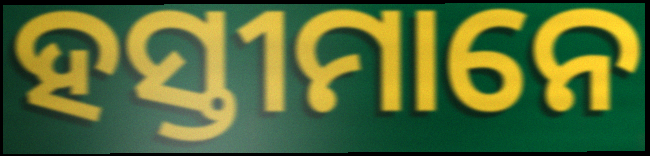
ହସ୍ତୀମାନେ